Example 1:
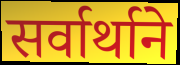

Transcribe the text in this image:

सर्वार्थाने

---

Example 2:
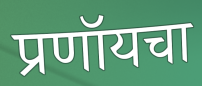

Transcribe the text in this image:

प्रणॉयचा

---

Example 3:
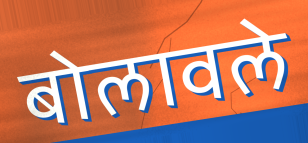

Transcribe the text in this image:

बोलावले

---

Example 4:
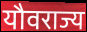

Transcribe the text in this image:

यौवराज्य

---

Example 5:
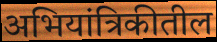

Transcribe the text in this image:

अभियांत्रिकीतील